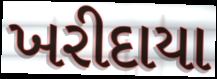
ખરીદાયા